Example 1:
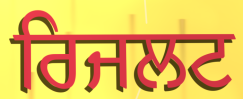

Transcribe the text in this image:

ਰਿਜਲਟ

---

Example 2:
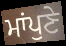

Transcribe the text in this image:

ਮਾਂਪੁਣੇ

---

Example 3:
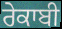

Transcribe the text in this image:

ਰੇਕਾਬੀ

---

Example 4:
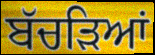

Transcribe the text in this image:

ਬੱਚੜਿਆਂ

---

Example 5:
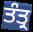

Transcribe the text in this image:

ਤੰਤ੍ਰ